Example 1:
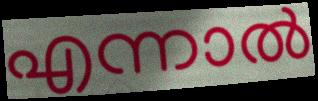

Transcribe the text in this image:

എന്നാൽ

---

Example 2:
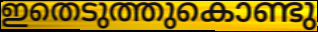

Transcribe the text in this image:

ഇതെടുത്തുകൊണ്ടു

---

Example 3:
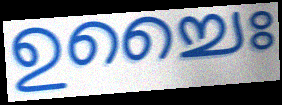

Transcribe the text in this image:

ഉച്ചൈഃ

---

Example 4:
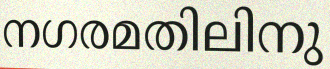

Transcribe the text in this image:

നഗരമതിലിനു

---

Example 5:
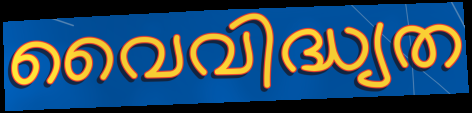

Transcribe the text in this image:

വൈവിദ്ധ്യത